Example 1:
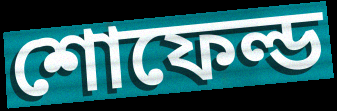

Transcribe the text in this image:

শোফেল্ড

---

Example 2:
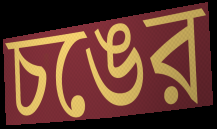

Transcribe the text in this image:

চঙের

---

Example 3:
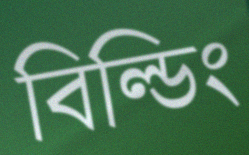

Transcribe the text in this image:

বিল্ডিং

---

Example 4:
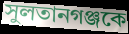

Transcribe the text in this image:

সুলতানগঞ্জকে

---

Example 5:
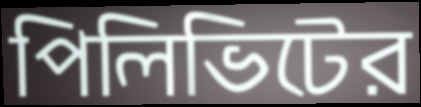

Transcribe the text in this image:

পিলিভিটের